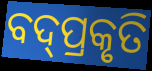
ବଦ୍‌ପ୍ରକୃତି